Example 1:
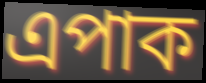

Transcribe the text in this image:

এপাক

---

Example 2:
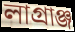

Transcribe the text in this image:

লাগ্ৰাঞ্জ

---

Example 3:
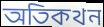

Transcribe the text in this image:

অতিকথন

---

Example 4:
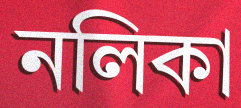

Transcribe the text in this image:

নলিকা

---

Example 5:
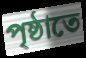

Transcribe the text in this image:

পৃষ্ঠাতে